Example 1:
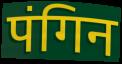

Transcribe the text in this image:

पंगिन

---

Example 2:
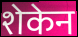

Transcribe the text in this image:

शेकेन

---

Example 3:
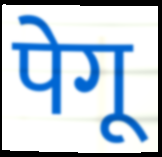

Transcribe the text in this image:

पेगू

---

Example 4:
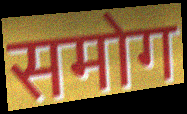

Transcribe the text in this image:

समोग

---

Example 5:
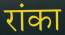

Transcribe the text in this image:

रांका